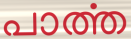
പാൎത്ത